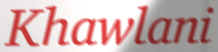
Khawlani